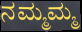
ನಮ್ಮಮ್ಮ